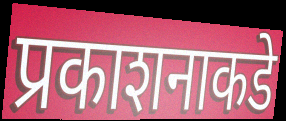
प्रकाशनाकडे